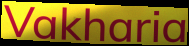
Vakharia